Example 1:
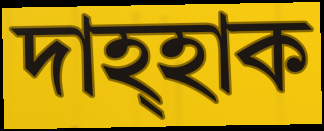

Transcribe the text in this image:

দাহ্হাক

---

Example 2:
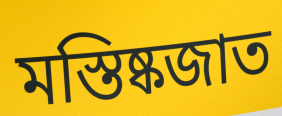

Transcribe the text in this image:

মস্তিষ্কজাত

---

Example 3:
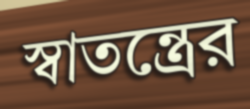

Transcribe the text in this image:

স্বাতন্ত্রের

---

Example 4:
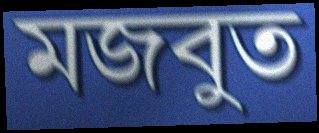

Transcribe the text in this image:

মজবুত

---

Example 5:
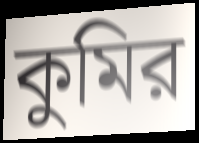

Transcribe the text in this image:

কুমির